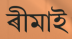
ৰীমাই